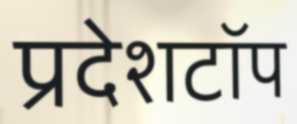
प्रदेशटॉप